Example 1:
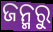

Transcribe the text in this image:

ଜନ୍ମରୁ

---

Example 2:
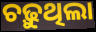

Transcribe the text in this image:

ଚଢ଼ୁଥିଲା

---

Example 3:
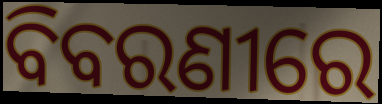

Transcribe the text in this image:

ବିବରଣୀରେ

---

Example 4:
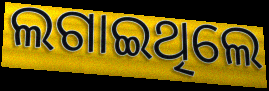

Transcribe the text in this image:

ଲଗାଇଥିଲେ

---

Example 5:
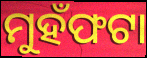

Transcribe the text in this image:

ମୁହଁଫଟା